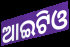
ଆଇଟିଓ